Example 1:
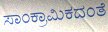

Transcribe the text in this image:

ಸಾಂಕ್ರಾಮಿಕದಂತೆ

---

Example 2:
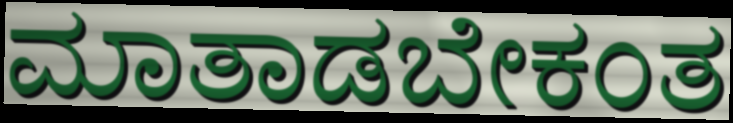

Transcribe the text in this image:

ಮಾತಾಡಬೇಕಂತ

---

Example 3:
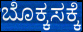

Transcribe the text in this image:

ಬೊಕ್ಕಸಕ್ಕೆ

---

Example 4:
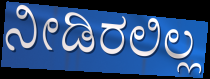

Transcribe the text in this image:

ನೀಡಿರಲಿಲ್ಲ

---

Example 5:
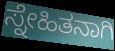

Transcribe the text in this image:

ಸ್ನೇಹಿತನಾಗಿ